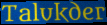
Talukder